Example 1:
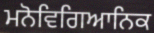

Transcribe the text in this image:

ਮਨੋਵਿਗਿਆਨਿਕ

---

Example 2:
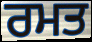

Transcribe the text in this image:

ਰਮਤ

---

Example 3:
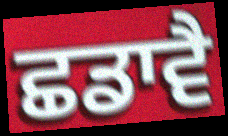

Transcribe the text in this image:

ਛਡਾਵੈ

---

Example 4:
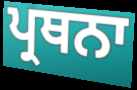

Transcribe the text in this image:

ਪ੍ਰਥਨਾ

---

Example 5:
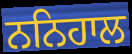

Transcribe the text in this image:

ਨਨਿਹਾਲ